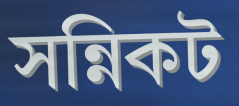
সন্নিকট